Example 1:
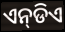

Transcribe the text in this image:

ଏନ୍‌ଡିଏ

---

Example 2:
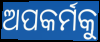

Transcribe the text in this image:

ଅପକର୍ମକୁ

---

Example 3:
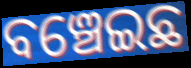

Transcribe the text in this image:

ବଞ୍ଚେଇଛ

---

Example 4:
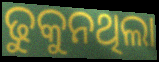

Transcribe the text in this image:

ଢୁକୁନଥିଲା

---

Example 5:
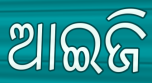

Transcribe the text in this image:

ଆଇଜି